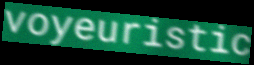
voyeuristic